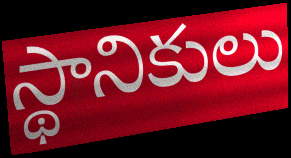
స్థానికులు